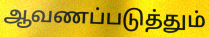
ஆவணப்படுத்தும்